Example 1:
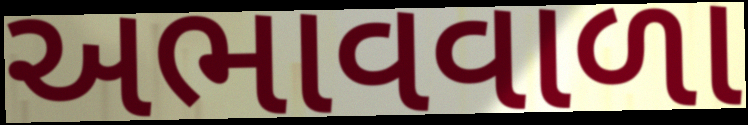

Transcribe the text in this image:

અભાવવાળા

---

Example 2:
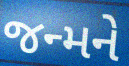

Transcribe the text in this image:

જન્મને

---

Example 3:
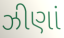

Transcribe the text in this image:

ઝીણાં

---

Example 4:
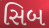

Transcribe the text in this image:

સિબ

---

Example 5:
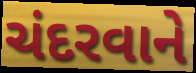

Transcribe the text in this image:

ચંદરવાને